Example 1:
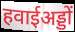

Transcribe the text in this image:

हवाईअड्डों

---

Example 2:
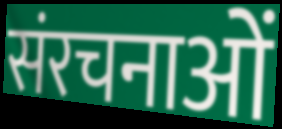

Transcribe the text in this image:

संरचनाओं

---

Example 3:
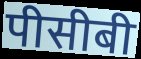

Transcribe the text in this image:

पीसीबी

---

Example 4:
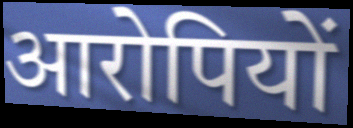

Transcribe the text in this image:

आरोपियों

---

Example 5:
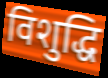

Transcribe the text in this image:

विशुद्धि